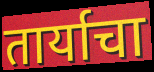
तार्याचा